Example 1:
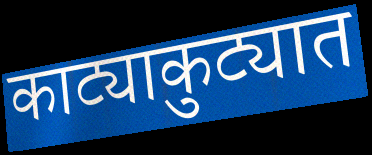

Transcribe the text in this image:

काट्याकुट्यात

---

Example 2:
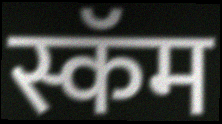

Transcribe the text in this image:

स्कॅम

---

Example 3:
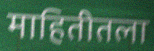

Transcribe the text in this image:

माहितीतला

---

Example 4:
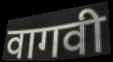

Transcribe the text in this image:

वागवी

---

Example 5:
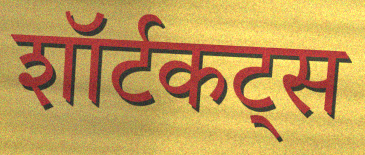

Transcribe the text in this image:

शॉर्टकट्स